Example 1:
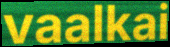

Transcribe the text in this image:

vaalkai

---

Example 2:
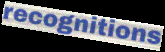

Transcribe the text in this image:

recognitions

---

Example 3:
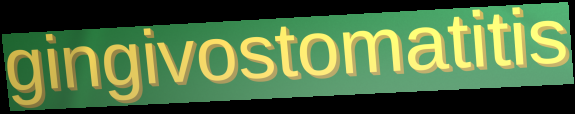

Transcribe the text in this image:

gingivostomatitis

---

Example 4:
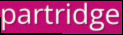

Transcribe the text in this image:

partridge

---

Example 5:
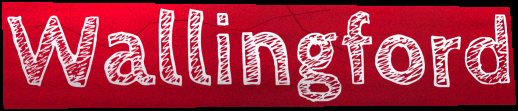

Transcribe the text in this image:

Wallingford